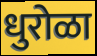
धुरोळा